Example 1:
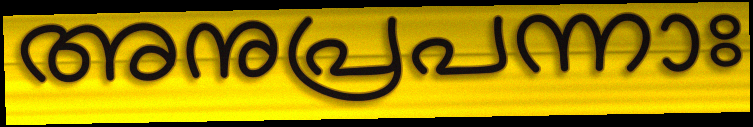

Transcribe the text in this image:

അനുപ്രപന്നാഃ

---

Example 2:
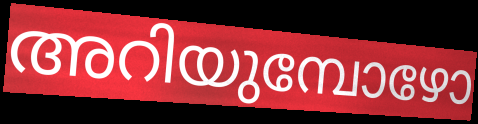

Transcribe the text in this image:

അറിയുമ്പോഴോ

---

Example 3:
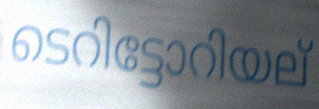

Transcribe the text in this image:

ടെറിട്ടോറിയല്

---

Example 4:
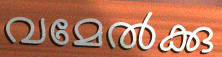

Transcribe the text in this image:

വമേൽക്കു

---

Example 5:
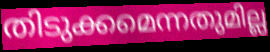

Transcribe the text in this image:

തിടുക്കമെന്നതുമില്ല